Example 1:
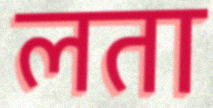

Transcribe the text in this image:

लता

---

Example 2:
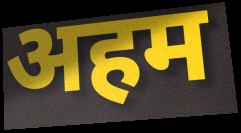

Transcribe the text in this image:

अहम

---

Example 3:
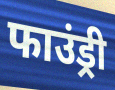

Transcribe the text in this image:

फाउंड्री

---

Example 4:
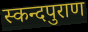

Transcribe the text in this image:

स्कन्दपुराण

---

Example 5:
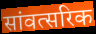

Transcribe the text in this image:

सांवत्सरिक